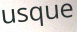
usque